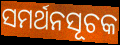
ସମର୍ଥନସୂଚକ